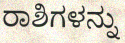
ರಾಶಿಗಳನ್ನು